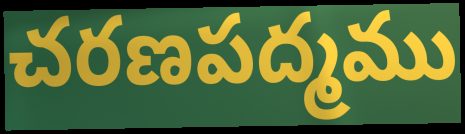
చరణపద్మము